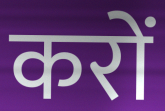
करों